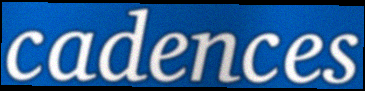
cadences